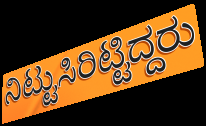
ನಿಟ್ಟುಸಿರಿಟ್ಟಿದ್ದರು